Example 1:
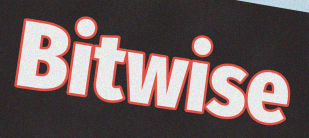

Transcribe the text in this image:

Bitwise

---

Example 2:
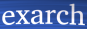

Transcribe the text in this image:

exarch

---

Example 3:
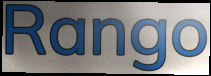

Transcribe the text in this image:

Rango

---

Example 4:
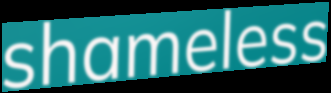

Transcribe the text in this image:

shameless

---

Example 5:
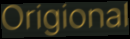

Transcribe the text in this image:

Origional